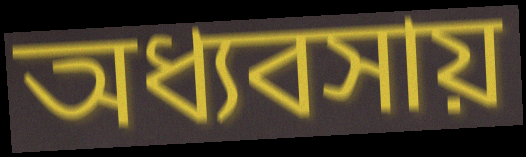
অধ্যবসায়